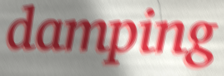
damping